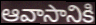
ఆవాసానికి